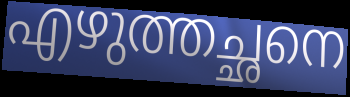
എഴുത്തച്ഛനെ